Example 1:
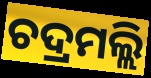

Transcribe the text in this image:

ଚଦ୍ରମଲ୍ଲି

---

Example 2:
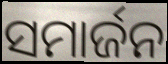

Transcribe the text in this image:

ସମାର୍ଜନ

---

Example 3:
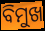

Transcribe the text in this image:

ବିମୁଖ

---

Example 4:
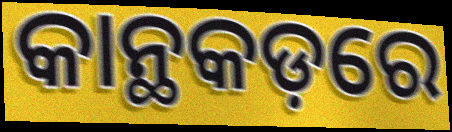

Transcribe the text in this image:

କାନ୍ଥକଡ଼ରେ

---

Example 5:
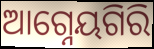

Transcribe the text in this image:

ଆଗ୍ନେୟଗିରି